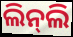
ଲିନ୍‌ଲି